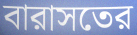
বারাসতের